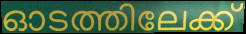
ഓടത്തിലേക്ക്